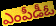
ఎంపీడీఓ